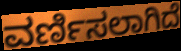
ವರ್ಣಿಸಲಾಗಿದೆ